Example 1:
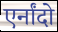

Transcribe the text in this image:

एर्नांदो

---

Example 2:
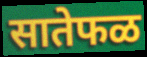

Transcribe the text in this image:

सातेफळ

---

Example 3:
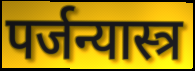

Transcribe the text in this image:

पर्जन्यास्त्र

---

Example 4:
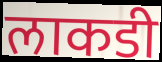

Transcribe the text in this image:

लाकडी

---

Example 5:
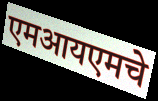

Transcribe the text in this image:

एमआयएमचे